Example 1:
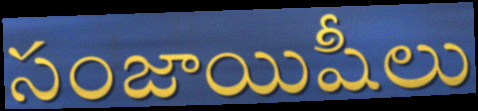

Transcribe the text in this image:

సంజాయిషీలు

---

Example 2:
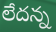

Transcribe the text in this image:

లేదన్న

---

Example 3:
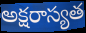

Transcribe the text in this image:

అక్షరాస్యత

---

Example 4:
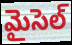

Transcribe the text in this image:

మైసెల్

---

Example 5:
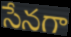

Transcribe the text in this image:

సేనగా